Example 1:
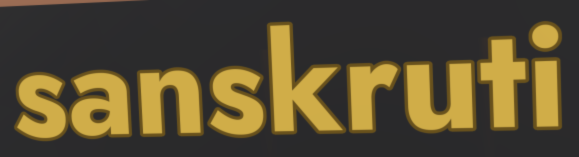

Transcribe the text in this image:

sanskruti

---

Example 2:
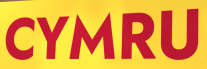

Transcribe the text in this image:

CYMRU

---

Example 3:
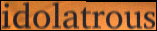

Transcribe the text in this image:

idolatrous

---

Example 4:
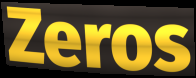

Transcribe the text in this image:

Zeros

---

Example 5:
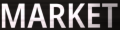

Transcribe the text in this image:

MARKET